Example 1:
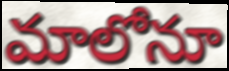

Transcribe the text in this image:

మాలోనూ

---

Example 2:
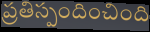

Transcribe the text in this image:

ప్రతిస్పందించింది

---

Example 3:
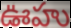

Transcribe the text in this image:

ఊహు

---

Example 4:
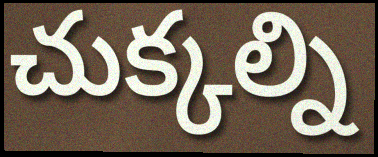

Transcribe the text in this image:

చుక్కల్ని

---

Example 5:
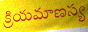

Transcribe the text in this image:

క్రియమాణస్య